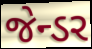
જેન્ડર